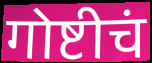
गोष्टीचं